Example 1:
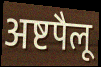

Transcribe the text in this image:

अष्टपैलू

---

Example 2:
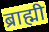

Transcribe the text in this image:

ब्राह्मी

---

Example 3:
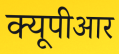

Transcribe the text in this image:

क्यूपीआर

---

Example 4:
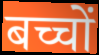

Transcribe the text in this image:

बच्चों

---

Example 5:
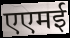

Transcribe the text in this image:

एएमई